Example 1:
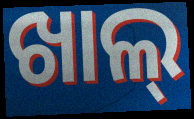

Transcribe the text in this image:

ଖାଲ୍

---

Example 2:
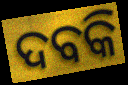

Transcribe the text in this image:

ଦବକି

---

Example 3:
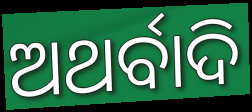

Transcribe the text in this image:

ଅଥର୍ବାଦି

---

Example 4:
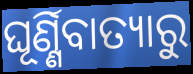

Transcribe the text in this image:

ଘୂର୍ଣ୍ଣିବାତ୍ୟାରୁ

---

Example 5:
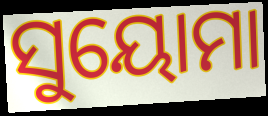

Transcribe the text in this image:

ସୁୟୋମା